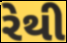
રેથી